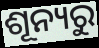
ଶୂନ୍ୟରୁ